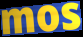
mos